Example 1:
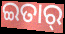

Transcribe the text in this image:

ଇତାର୍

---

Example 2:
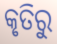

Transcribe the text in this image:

କୃତିରୁ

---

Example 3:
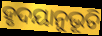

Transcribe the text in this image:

ହୃଦୟାନୁଭୂତି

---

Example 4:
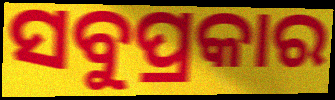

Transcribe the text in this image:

ସବୁପ୍ରକାର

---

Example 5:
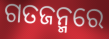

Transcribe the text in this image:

ଗତଜନ୍ମରେ